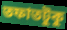
তফাতটুকু